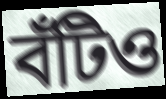
বঁটিও